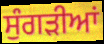
ਸੁੰਗੜੀਆਂ